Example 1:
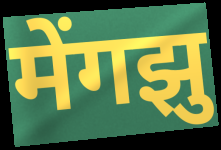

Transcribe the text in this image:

मेंगझु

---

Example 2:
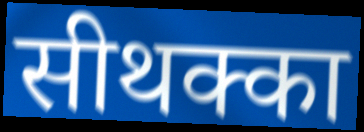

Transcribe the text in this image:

सीथक्का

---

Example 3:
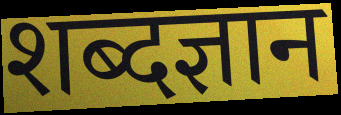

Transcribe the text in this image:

शब्दज्ञान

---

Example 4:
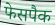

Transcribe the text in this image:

फेसपैक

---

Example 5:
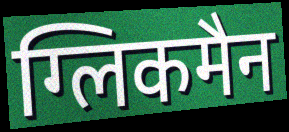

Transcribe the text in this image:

ग्लिकमैन